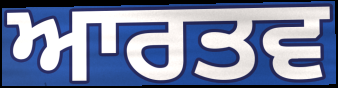
ਆਰਤਵ